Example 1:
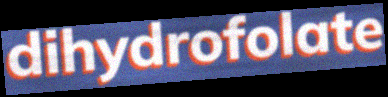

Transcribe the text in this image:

dihydrofolate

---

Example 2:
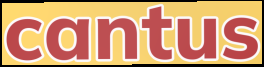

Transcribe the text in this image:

cantus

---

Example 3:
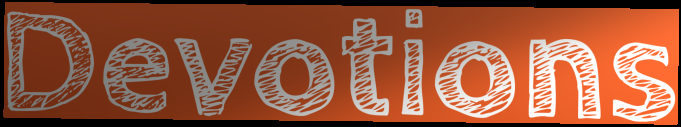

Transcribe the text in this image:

Devotions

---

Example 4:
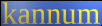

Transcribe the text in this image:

kannum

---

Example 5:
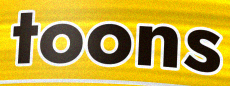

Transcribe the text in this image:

toons